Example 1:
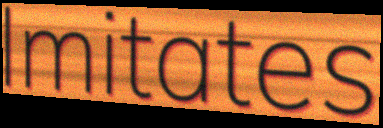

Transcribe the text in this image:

Imitates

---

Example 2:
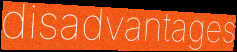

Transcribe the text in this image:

disadvantages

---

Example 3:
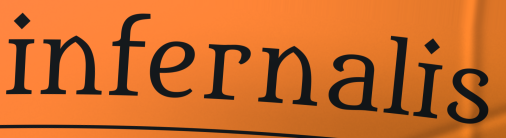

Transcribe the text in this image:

infernalis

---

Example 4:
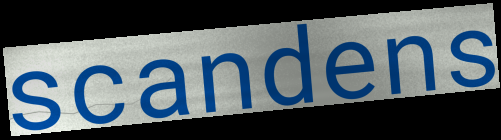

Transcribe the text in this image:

scandens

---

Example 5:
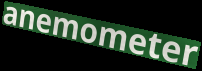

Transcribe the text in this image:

anemometer